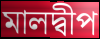
মালদ্বীপ